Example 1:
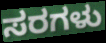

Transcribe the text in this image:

ಸರಗಳು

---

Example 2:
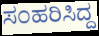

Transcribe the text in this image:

ಸಂಹರಿಸಿದ್ದ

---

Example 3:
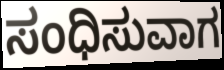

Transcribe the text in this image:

ಸಂಧಿಸುವಾಗ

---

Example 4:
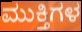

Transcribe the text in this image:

ಮುಕ್ತಿಗಳ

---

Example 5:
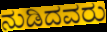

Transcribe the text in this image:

ನುಡಿದವರು